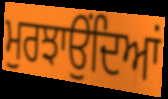
ਮੁਰਝਾਉਂਦਿਆਂ